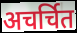
अचर्चित